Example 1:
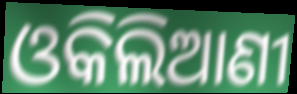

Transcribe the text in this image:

ଓକିଲିଆଣୀ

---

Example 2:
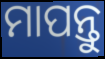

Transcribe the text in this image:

ମାପନ୍ତୁ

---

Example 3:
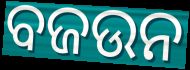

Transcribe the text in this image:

ବଜଉନ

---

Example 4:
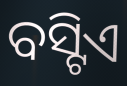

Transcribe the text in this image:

ବସ୍ଟିଏ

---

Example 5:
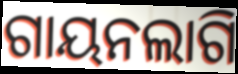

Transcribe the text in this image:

ଗାୟନଲାଗି